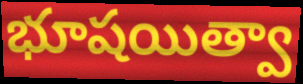
భూషయిత్వా